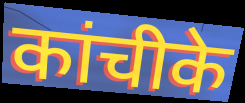
कांचीके